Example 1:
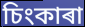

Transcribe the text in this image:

চিংকাৰা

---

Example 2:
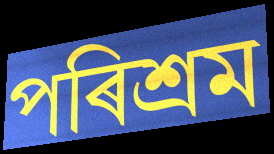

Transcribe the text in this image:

পৰিশ্ৰম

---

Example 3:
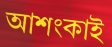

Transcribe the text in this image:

আশংকাই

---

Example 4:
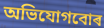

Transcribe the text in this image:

অভিযোগবোৰ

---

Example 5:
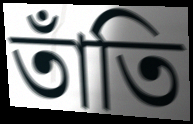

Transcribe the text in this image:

তাঁতি